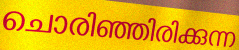
ചൊരിഞ്ഞിരിക്കുന്ന